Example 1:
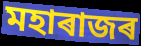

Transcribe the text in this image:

মহাৰাজৰ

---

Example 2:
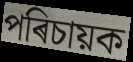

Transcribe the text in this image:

পৰিচায়ক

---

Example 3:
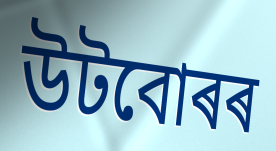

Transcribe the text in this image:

উটবোৰৰ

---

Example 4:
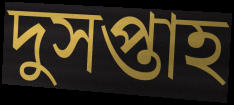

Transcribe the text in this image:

দুসপ্তাহ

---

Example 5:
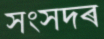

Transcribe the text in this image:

সংসদৰ